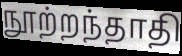
நூற்றந்தாதி